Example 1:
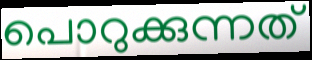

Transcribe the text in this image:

പൊറുക്കുന്നത്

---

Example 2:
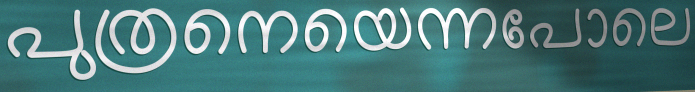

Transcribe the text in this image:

പുത്രനെയെന്നപോലെ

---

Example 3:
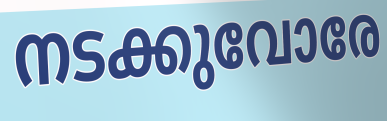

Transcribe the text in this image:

നടക്കുവോരേ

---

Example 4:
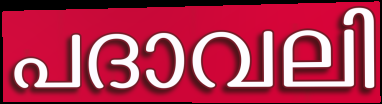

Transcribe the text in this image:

പദാവലി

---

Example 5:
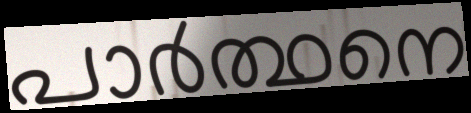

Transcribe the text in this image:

പാർത്ഥനെ